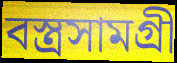
বস্ত্রসামগ্রী